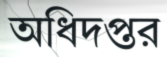
অধিদপ্তর